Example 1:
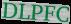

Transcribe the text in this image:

DLPFC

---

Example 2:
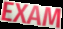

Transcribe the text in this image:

EXAM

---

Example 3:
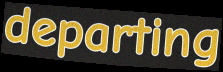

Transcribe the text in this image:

departing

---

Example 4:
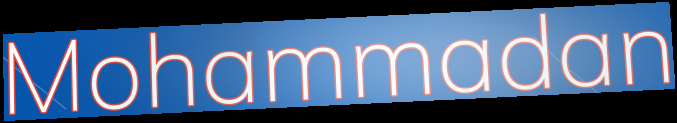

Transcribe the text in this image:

Mohammadan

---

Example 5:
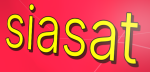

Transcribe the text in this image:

siasat